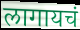
लागायचं